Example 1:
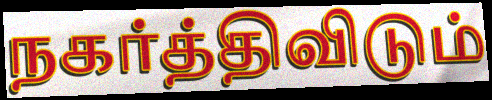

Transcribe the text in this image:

நகர்த்திவிடும்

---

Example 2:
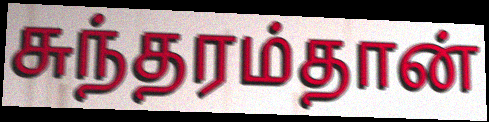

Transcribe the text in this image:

சுந்தரம்தான்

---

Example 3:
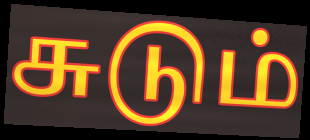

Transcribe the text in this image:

சுடும்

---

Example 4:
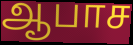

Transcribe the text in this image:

ஆபாச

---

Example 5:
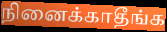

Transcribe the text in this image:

நினைக்காதீங்க